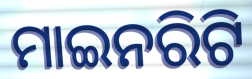
ମାଇନରିଟି